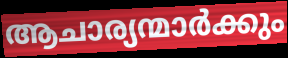
ആചാര്യന്മാർക്കും